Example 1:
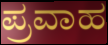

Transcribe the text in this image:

ಪ್ರವಾಹ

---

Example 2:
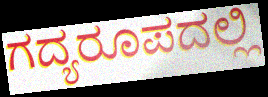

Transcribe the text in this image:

ಗದ್ಯರೂಪದಲ್ಲಿ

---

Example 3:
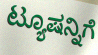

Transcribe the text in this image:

ಟ್ಯೂಷನ್ನಿಗೆ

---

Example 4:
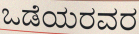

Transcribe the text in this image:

ಒಡೆಯರವರ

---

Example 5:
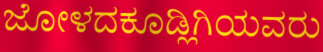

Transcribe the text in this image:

ಜೋಳದಕೂಡ್ಲಿಗಿಯವರು